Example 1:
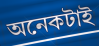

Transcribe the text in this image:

অনেকটাই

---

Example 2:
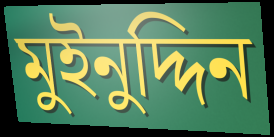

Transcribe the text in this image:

মুইনুদ্দিন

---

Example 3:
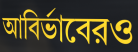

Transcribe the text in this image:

আবির্ভাবেরও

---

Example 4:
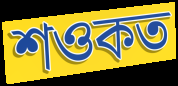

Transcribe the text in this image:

শওকত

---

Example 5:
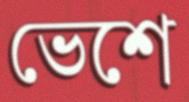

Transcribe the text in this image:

ভেশে